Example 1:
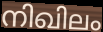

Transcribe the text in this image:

നിഖിലം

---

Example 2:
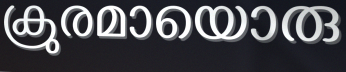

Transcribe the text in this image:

ക്രുരമായൊരു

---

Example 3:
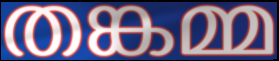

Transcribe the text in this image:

തങ്കമ്മ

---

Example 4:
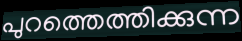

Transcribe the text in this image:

പുറത്തെത്തിക്കുന്ന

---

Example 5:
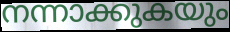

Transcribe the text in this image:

നന്നാക്കുകയും